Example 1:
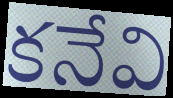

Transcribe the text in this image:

కనేవి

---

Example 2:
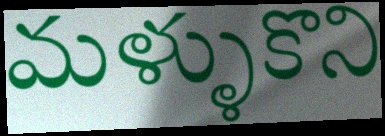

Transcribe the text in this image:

మళ్ళుకొని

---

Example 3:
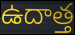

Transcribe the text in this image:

ఉదాత్త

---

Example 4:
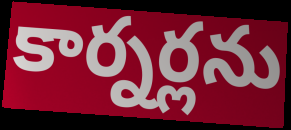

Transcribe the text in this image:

కార్నర్లను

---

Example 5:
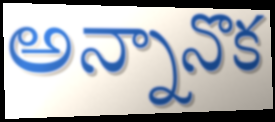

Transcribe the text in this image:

అన్నానొక